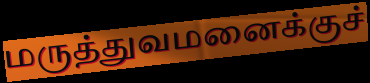
மருத்துவமனைக்குச்